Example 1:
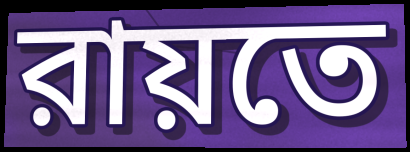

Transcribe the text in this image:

রায়তে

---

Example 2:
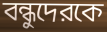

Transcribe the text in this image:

বন্ধুদেরকে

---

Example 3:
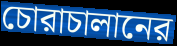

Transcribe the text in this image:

চোরাচালানের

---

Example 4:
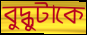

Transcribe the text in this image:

বুদ্ধুটাকে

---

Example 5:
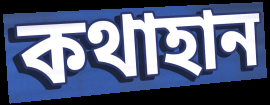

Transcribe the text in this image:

কথাহান